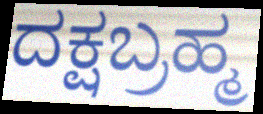
ದಕ್ಷಬ್ರಹ್ಮ